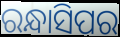
ରନ୍ଧାସିପର